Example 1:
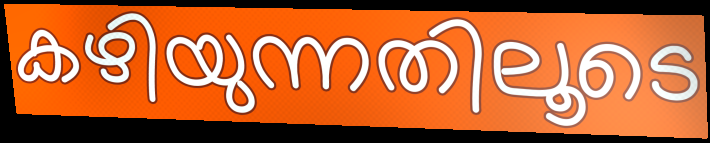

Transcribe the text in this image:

കഴിയുന്നതിലൂടെ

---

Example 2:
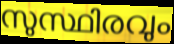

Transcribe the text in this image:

സുസ്ഥിരവും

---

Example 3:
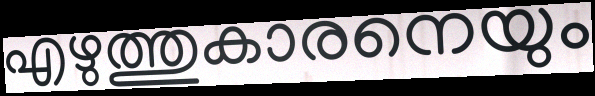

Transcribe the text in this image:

എഴുത്തുകാരനെയും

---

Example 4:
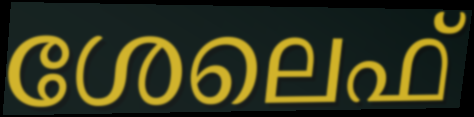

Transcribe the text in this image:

ശേലെഫ്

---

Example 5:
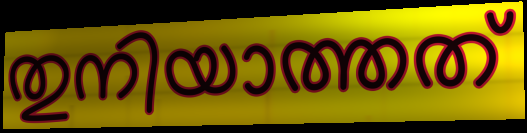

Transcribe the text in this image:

തുനിയാത്തത്